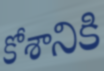
కోశానికి